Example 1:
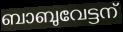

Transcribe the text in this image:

ബാബുവേട്ടന്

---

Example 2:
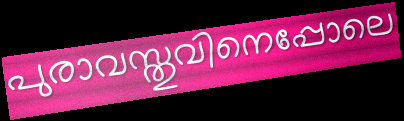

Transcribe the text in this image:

പുരാവസ്തുവിനെപ്പോലെ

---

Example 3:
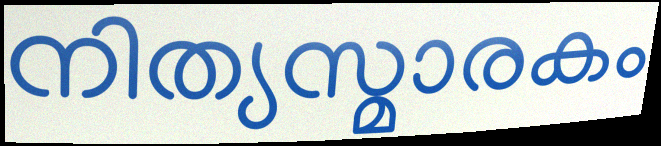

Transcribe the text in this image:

നിത്യസ്മാരകം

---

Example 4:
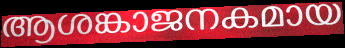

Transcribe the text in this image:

ആശങ്കാജനകമായ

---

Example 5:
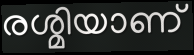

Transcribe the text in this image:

രശ്മിയാണ്